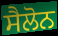
ਸੈਲੋਨ